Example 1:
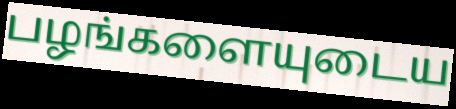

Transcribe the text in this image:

பழங்களையுடைய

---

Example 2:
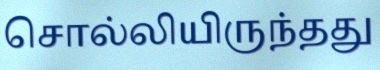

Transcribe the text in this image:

சொல்லியிருந்தது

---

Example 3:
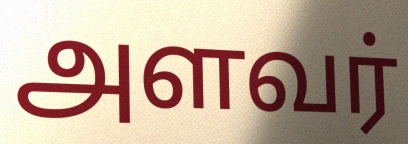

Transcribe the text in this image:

அளவர்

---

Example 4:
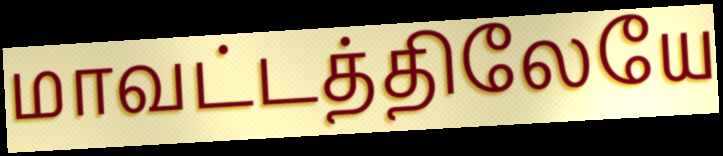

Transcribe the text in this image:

மாவட்டத்திலேயே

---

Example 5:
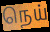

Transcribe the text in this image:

நெய்